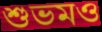
শুভমও